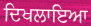
ਦਿਖਲਾਇਆ